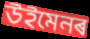
উইমেনৰ